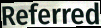
Referred